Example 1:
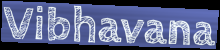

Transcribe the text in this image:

Vibhavana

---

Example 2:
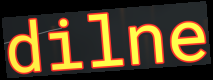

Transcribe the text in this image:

dilne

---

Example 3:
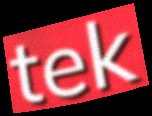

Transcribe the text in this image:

tek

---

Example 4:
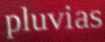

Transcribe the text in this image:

pluvias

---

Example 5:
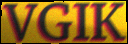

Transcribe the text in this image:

VGIK